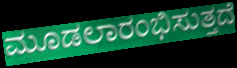
ಮೂಡಲಾರಂಭಿಸುತ್ತದೆ